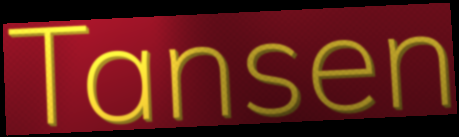
Tansen